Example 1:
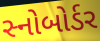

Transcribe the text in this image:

સ્નોબોર્ડર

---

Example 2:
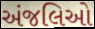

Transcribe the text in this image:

અંજલિઓ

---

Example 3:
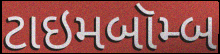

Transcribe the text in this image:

ટાઇમબૉમ્બ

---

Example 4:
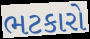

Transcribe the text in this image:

ભટકારો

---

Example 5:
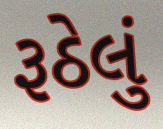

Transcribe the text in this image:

રૂઠેલું